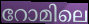
റോമിലെ